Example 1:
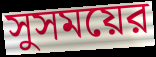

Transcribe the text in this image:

সুসময়ের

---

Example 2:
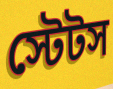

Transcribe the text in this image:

স্টেটস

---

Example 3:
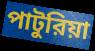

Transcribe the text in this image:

পাটুরিয়া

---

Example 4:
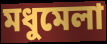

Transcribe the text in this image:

মধুমেলা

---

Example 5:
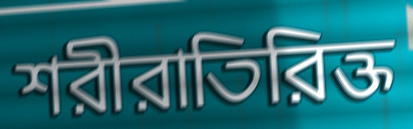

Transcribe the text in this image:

শরীরাতিরিক্ত